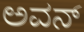
ಅವನ್